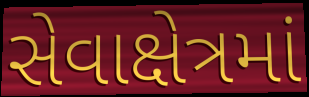
સેવાક્ષેત્રમાં